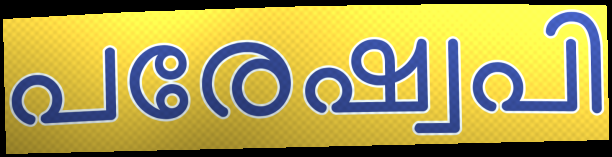
പരേഷ്വപി